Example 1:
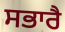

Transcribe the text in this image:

ਸਭਾਰੈ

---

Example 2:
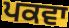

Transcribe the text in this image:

ਪਕਵਾ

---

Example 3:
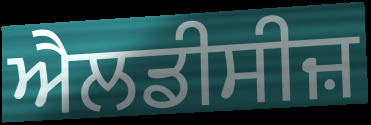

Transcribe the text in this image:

ਐਲਡੀਸੀਜ਼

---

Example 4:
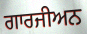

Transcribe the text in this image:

ਗਾਰਜੀਅਨ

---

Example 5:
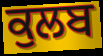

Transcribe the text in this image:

ਕੁਲਬ